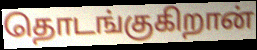
தொடங்குகிறான்